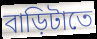
বাড়িটাতে